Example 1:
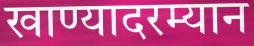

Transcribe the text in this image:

खाण्यादरम्यान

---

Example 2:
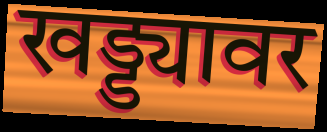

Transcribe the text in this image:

खड्ड्यावर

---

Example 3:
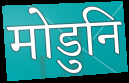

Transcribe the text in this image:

मोडुनि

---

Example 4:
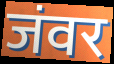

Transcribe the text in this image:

जंवर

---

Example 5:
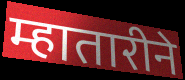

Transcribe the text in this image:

म्हातारीने